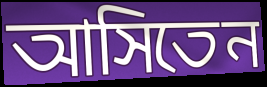
আসিতেন